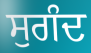
ਸੁਗੰਦ